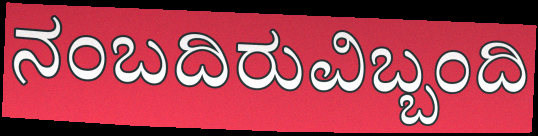
ನಂಬದಿರುವಿಬ್ಬಂದಿ